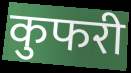
कुफरी